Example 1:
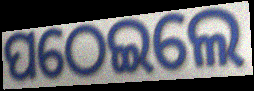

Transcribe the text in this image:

ପଠେଇଲେ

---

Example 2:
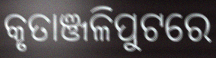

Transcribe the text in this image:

କୃତାଞ୍ଜଳିପୁଟରେ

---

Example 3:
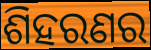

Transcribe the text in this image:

ଶିହରଣର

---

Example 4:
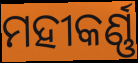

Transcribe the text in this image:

ମହୀକର୍ଣ୍ଣ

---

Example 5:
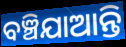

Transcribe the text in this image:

ବଞ୍ଚିଯାଆନ୍ତି